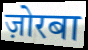
ज़ोरबा